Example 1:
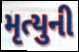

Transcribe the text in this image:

મૃત્યુની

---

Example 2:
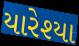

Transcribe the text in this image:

યારેશ્યા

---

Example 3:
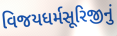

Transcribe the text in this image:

વિજયધર્મસૂરિજીનું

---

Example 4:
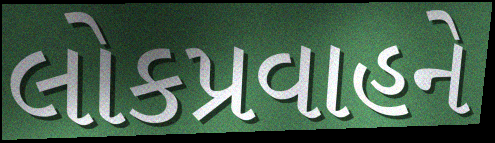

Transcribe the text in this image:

લોકપ્રવાહને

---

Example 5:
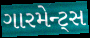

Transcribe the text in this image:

ગારમેન્ટ્સ